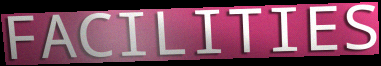
FACILITIES